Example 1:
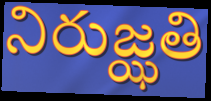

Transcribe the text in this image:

నిరుజ్ఝతి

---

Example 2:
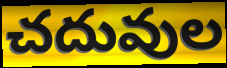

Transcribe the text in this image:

చదువుల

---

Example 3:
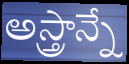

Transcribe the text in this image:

అస్త్రాన్నే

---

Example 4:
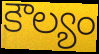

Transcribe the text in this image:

కౌల్యం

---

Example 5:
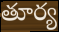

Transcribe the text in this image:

తూర్య